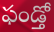
ఫండ్తో